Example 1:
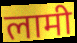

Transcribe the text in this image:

लामी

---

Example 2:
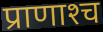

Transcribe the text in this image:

प्राणाश्च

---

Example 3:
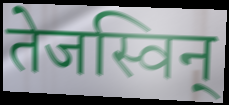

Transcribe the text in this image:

तेजस्विन्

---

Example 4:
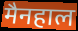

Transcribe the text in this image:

मैनहाल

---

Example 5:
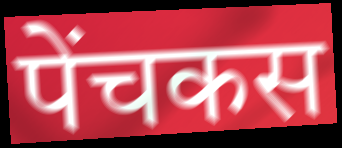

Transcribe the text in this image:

पेंचकस